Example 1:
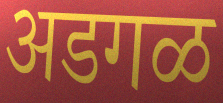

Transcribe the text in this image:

अडगळ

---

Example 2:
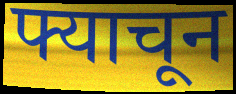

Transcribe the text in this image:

फ्याचून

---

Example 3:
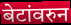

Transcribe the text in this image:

बेटांवरुन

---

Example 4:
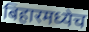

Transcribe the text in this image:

बिहारमध्येच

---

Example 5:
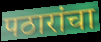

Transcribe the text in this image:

पठारांचा